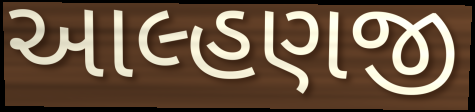
આલ્હણજી